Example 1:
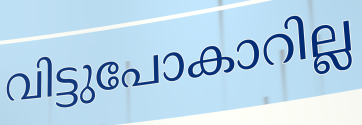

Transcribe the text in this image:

വിട്ടുപോകാറില്ല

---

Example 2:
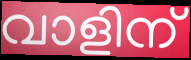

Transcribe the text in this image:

വാളിന്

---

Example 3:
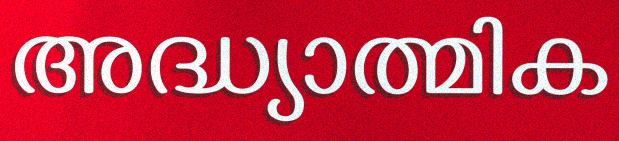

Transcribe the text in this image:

അദ്ധ്യാത്മിക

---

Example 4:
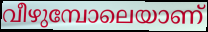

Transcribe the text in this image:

വീഴുമ്പോലെയാണ്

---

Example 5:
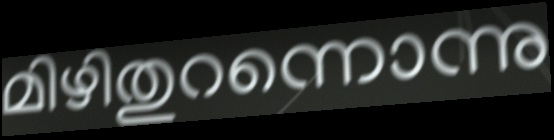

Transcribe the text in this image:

മിഴിതുറന്നൊന്നു